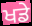
ਖਡੇ